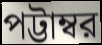
পট্টাম্বর